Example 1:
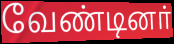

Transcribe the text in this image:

வேண்டினர்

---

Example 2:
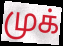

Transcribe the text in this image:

முக்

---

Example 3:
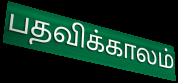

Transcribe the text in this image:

பதவிக்காலம்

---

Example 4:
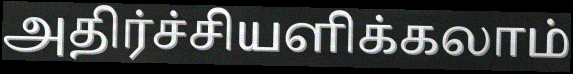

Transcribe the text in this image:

அதிர்ச்சியளிக்கலாம்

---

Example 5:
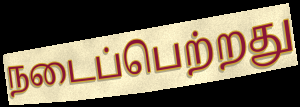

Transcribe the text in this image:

நடைப்பெற்றது